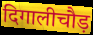
दिगालीचौड़